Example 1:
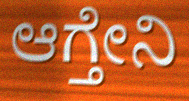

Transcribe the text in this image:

ಆಗ್ತೇನಿ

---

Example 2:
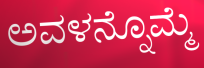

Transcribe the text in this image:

ಅವಳನ್ನೊಮ್ಮೆ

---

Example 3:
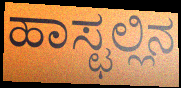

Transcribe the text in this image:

ಹಾಸ್ಟಲ್ಲಿನ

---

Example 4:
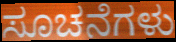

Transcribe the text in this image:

ಸೂಚನೆಗಳು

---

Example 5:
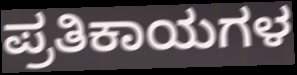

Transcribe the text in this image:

ಪ್ರತಿಕಾಯಗಳ